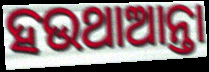
ହଉଥାଆନ୍ତା